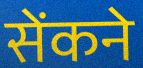
सेंकने